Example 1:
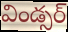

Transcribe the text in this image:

విండ్సర్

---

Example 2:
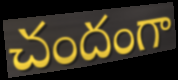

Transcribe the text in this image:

చందంగా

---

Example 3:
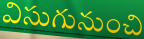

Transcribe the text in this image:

విసుగునుంచి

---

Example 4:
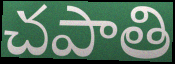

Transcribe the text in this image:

చపాతి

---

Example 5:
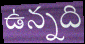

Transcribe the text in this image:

ఉన్నది